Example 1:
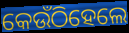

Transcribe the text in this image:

କେଉଁଠିହେଲେ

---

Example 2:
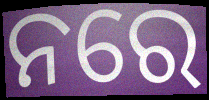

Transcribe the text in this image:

ନରେ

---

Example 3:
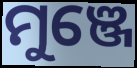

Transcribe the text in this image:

ମୁଞ୍ଜେ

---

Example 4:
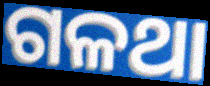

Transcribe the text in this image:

ଗଳଥା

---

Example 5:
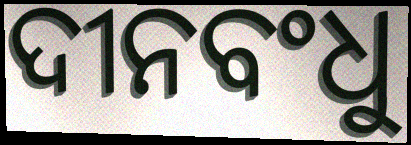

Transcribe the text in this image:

ଦୀନବଂଧୁ